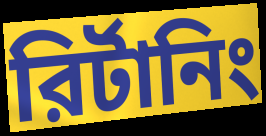
রির্টানিং